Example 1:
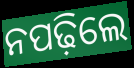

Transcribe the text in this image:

ନପଢ଼ିଲେ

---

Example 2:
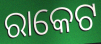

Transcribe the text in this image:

ରାକେଟ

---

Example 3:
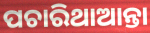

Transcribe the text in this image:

ପଚାରିଥାଆନ୍ତା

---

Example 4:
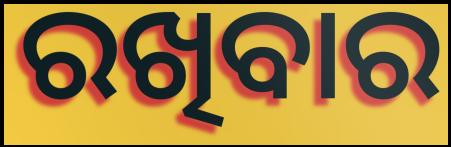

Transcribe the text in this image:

ରଖିବାର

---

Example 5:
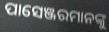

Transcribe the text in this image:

ପାସେଞ୍ଜରମାନଙ୍କୁ